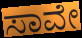
ಸಾವೇ